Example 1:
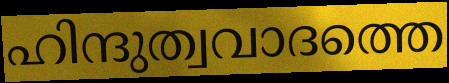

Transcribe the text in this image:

ഹിന്ദുത്വവാദത്തെ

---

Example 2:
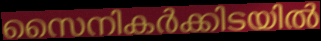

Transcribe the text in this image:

സൈനികർക്കിടയിൽ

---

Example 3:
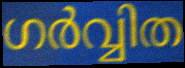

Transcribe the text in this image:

ഗർവ്വിത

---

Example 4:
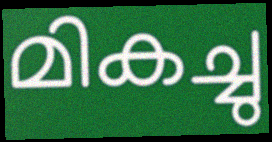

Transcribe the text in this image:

മികച്ചു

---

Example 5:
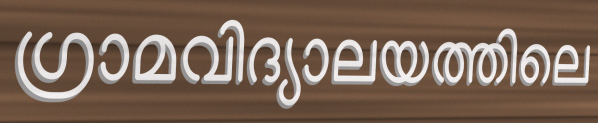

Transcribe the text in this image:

ഗ്രാമവിദ്യാലയത്തിലെ